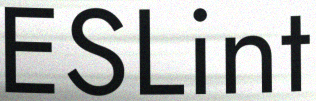
ESLint